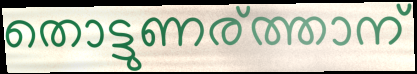
തൊട്ടുണര്ത്താന്